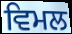
ਵਿਮਲ